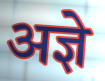
अज्ञे